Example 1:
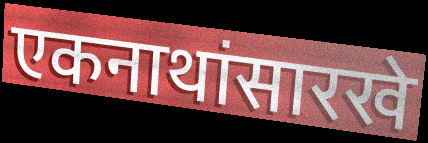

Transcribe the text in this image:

एकनाथांसारखे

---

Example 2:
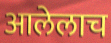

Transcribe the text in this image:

आलेलाच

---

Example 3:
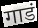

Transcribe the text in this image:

गाडं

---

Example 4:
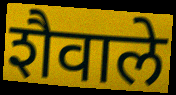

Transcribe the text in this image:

शैवाले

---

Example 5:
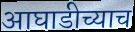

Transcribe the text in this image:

आघाडीच्याच